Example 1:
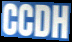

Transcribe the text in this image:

CCDH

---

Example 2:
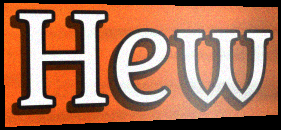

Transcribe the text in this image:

Hew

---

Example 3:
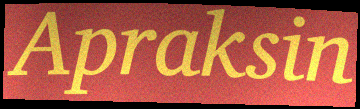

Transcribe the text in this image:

Apraksin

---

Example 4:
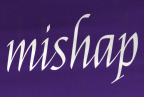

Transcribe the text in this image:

mishap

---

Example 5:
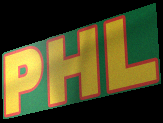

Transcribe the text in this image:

PHL